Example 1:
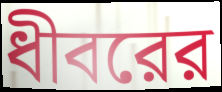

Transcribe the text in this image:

ধীবরের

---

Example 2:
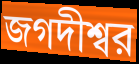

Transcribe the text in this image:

জগদীশ্বর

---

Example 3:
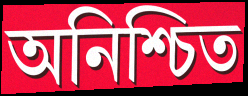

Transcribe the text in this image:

অনিশ্চিত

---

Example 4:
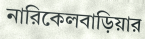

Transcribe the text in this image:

নারিকেলবাড়িয়ার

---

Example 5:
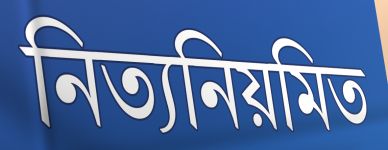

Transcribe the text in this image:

নিত্যনিয়মিত